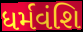
ધર્મવંશિ